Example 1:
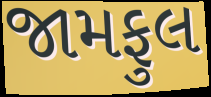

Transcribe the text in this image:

જામફુલ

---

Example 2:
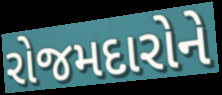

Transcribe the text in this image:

રોજમદારોને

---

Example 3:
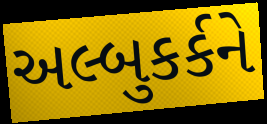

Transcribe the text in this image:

અલ્બુકર્કને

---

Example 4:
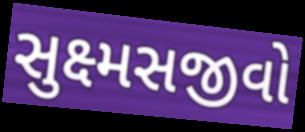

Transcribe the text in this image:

સુક્ષ્મસજીવો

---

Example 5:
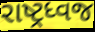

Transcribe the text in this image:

રાષ્ટ્રધ્વજ